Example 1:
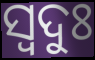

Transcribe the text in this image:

ସ୍ବଦୁଃ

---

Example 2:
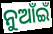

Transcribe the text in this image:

ନୁଆଁଇଁ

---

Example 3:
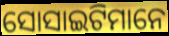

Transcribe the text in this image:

ସୋସାଇଟିମାନେ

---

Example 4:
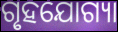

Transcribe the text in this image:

ଗୃହଯୋଗ୍ୟା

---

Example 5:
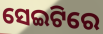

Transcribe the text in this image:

ସେଇଟିରେ